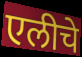
एलीचे